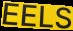
EELS